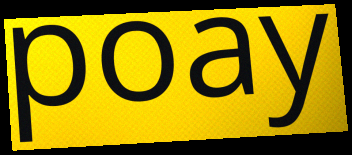
poay